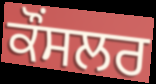
ਕੌੰਸਲਰ